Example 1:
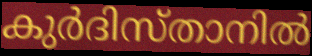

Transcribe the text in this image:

കുർദിസ്താനിൽ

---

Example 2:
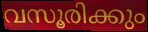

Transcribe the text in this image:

വസൂരിക്കും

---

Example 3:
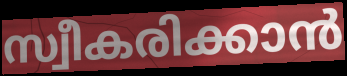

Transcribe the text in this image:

സ്വീകരിക്കാൻ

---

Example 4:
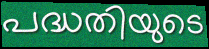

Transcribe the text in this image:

പദ്ധതിയുടെ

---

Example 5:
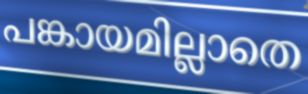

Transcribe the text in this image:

പങ്കായമില്ലാതെ